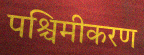
पश्चिमीकरण